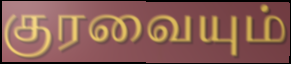
குரவையும்